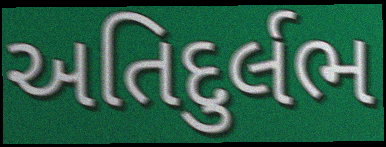
અતિદુર્લભ